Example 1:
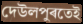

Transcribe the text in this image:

দেউলপুৰতেই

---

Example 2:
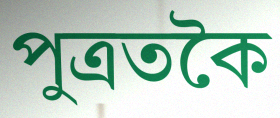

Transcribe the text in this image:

পুত্ৰতকৈ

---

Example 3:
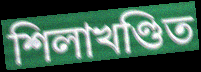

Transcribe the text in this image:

শিলাখণ্ডিত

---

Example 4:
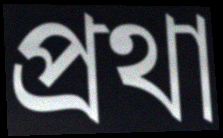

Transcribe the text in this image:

প্ৰথা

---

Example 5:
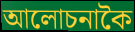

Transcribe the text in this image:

আলোচনাকৈ